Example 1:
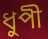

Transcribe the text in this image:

ধুপী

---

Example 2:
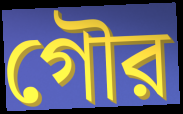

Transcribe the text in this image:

গৌর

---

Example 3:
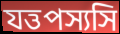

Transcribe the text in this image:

যত্তপস্যসি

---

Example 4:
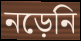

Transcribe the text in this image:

নড়েনি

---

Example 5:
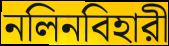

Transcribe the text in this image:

নলিনবিহারী